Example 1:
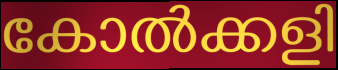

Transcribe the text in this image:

കോൽക്കളി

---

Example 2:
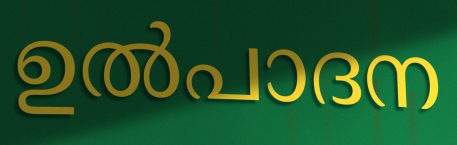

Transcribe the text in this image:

ഉൽപാദന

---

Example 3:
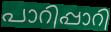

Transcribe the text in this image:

പാറിപ്പാറി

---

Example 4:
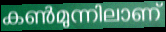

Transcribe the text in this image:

കൺമുന്നിലാണ്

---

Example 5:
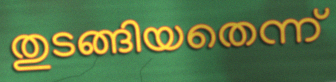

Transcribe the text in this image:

തുടങ്ങിയതെന്ന്